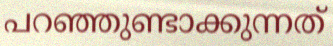
പറഞ്ഞുണ്ടാക്കുന്നത്